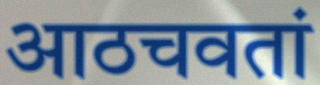
आठचवतां